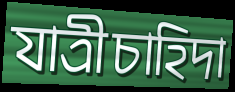
যাত্রীচাহিদা